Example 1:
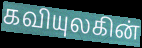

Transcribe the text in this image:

கவியுலகின்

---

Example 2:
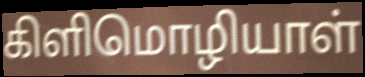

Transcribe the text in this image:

கிளிமொழியாள்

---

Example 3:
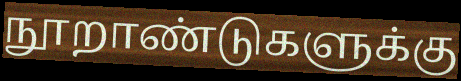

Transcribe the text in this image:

நூறாண்டுகளுக்கு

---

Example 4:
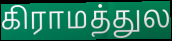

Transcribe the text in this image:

கிராமத்துல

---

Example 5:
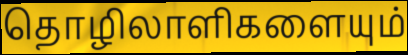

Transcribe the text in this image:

தொழிலாளிகளையும்